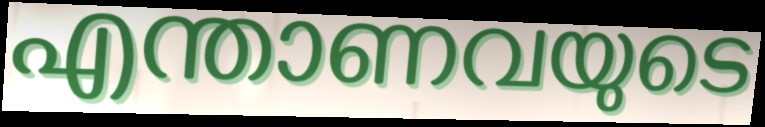
എന്താണവയുടെ